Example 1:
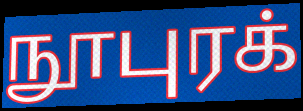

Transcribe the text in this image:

நூபுரக்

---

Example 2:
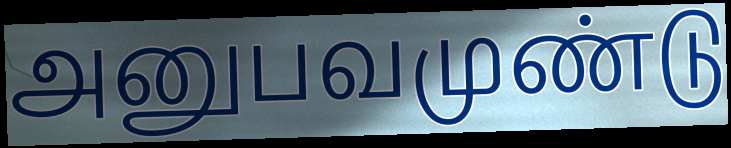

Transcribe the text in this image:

அனுபவமுண்டு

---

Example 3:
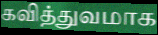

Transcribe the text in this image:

கவித்துவமாக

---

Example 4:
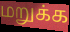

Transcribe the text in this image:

மறுக்க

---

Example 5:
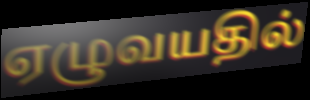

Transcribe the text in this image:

ஏழுவயதில்